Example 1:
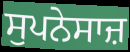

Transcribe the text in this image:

ਸੁਪਨੇਸਾਜ਼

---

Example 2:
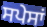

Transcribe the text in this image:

ਸਪੇਸਾਂ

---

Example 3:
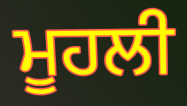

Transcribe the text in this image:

ਮੂਹਲੀ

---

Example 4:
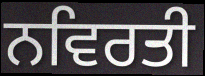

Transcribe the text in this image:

ਨਵਿਰਤੀ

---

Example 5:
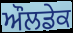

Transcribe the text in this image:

ਔਲਡੇਕ